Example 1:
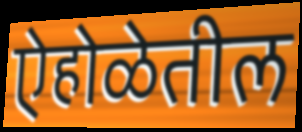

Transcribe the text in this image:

ऐहोळेतील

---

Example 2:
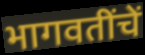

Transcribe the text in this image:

भागवतींचें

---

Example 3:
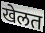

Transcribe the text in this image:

खेलत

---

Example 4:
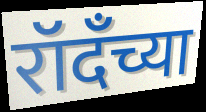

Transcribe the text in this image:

रॉदँच्या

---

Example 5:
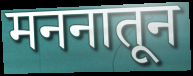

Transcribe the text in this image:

मननातून